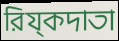
রিয্কদাতা